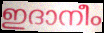
ഇദാനീം